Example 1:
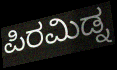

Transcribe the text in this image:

ಪಿರಮಿಡ್ನ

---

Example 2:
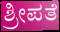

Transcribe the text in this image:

ಶ್ರೀಪತೆ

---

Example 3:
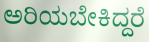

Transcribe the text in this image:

ಅರಿಯಬೇಕಿದ್ದರೆ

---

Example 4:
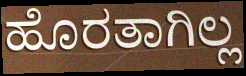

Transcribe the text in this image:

ಹೊರತಾಗಿಲ್ಲ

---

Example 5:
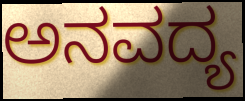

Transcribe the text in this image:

ಅನವದ್ಯ